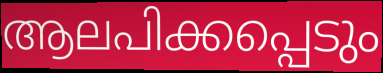
ആലപിക്കപ്പെടും